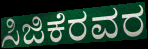
ಸಿಜಿಕೆರವರ